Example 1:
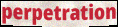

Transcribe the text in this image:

perpetration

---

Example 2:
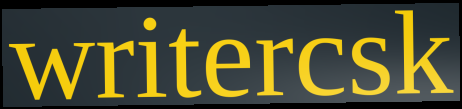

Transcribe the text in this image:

writercsk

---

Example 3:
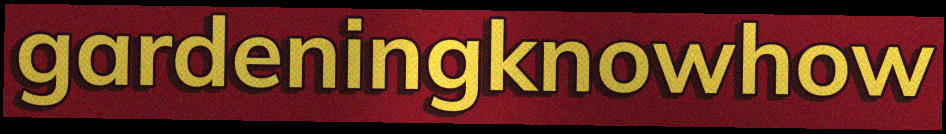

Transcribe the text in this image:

gardeningknowhow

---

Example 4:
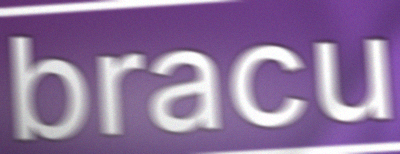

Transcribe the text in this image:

bracu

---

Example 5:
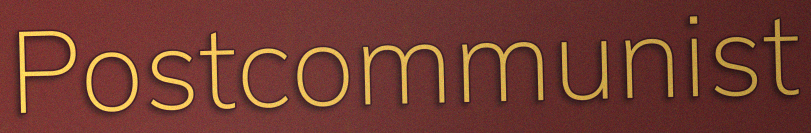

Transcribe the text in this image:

Postcommunist